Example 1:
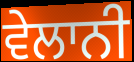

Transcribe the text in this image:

ਵੇਲਾਨੀ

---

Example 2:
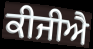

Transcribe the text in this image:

ਕੀਜੀਐ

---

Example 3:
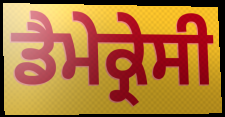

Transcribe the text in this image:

ਡੈਮੇਕ੍ਰੇਸੀ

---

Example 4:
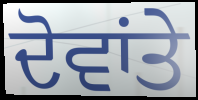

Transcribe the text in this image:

ਦੋਵਾਂਤੇ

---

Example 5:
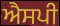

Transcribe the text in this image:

ਐਸਪੀ